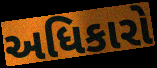
અધિકારો